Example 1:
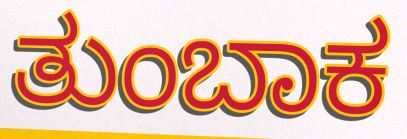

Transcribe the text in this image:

ತುಂಬಾಕ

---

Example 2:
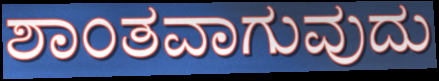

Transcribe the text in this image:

ಶಾಂತವಾಗುವುದು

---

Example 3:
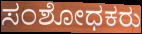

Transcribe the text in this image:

ಸಂಶೋಧಕರು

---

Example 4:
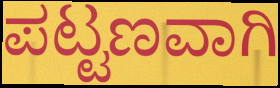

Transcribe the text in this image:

ಪಟ್ಟಣವಾಗಿ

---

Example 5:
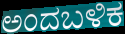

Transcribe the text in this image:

ಅಂದಬಳಿಕ